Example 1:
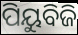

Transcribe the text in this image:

ପିୟୁବିଜି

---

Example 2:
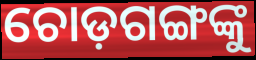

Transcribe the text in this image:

ଚୋଡ଼ଗଙ୍ଗଙ୍କୁ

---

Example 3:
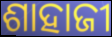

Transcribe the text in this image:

ଶାହାଜୀ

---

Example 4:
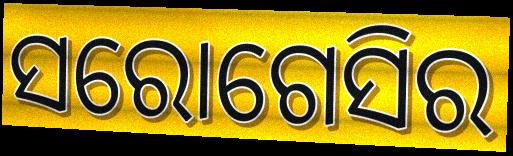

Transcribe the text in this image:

ସରୋଗେସିର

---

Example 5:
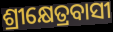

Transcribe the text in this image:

ଶ୍ରୀକ୍ଷେତ୍ରବାସୀ